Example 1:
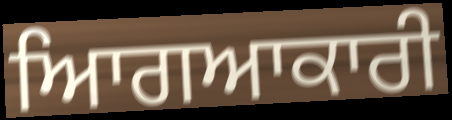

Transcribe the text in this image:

ਆਿਗਆਕਾਰੀ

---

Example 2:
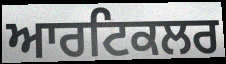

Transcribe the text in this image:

ਆਰਟਿਕਲਰ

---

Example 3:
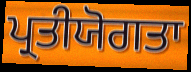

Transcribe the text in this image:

ਪ੍ਰਤੀਯੋਗਤਾ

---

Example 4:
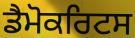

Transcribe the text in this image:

ਡੈਮੋਕਰਿਟਸ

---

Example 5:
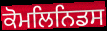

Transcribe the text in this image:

ਕੋਮਲਿਨਿਡਸ